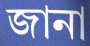
জানা